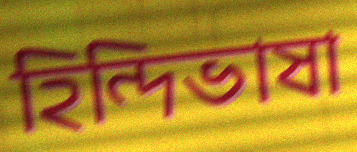
হিন্দিভাষা